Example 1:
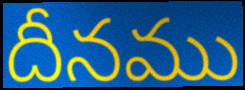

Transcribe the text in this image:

దీనము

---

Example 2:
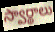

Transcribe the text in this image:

స్వార్థాలు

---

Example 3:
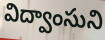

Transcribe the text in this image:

విద్వాంసుని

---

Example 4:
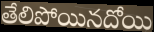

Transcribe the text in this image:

తేలిపోయినదోయి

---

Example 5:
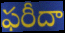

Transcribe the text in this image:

ఫరీదా